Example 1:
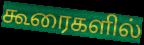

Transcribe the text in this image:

கூரைகளில்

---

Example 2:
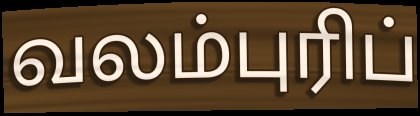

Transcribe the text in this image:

வலம்புரிப்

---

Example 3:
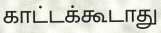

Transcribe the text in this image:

காட்டக்கூடாது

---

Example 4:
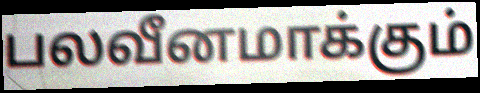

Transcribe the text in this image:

பலவீனமாக்கும்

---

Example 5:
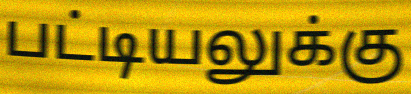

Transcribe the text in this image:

பட்டியலுக்கு